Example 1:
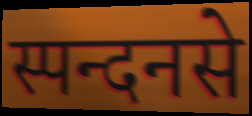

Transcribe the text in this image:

स्पन्दनसे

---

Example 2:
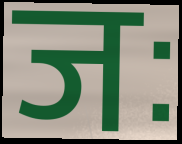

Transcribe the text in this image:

जः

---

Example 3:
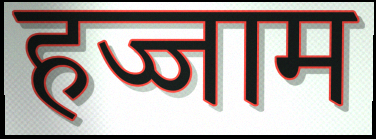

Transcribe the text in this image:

हज्जाम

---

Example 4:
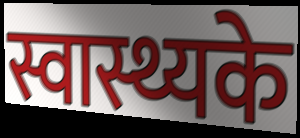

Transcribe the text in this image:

स्वास्थ्यके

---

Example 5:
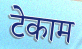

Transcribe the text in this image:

टेकाम